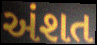
અંશત